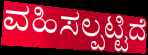
ವಹಿಸಲ್ಪಟ್ಟಿದೆ